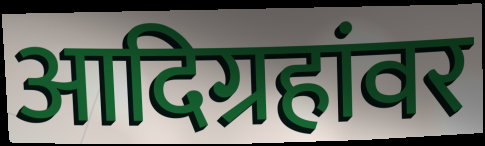
आदिग्रहांवर